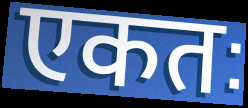
एकतः